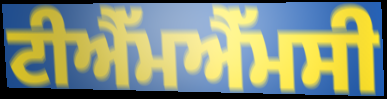
ਟੀਐੱਮਐੱਮਸੀ